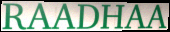
RAADHAA